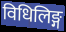
विधिलिङ्ग